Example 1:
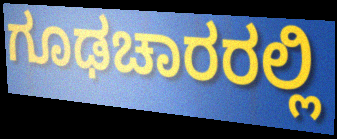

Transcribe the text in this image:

ಗೂಢಚಾರರಲ್ಲಿ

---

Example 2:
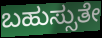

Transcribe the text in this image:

ಬಹುಸ್ಸುತೇ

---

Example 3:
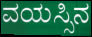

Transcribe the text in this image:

ವಯಸ್ಸಿನ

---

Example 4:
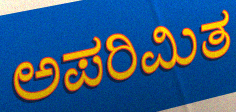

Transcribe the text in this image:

ಅಪರಿಮಿತ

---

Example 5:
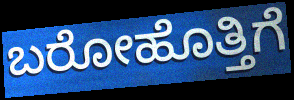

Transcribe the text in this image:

ಬರೋಹೊತ್ತಿಗೆ